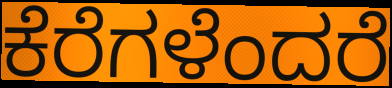
ಕೆರೆಗಳೆಂದರೆ